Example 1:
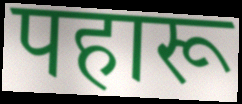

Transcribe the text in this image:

पहारू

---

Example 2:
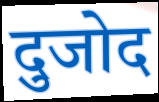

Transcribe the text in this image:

दुजोद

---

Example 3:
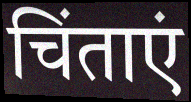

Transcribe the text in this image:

चिंताएं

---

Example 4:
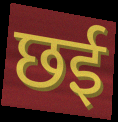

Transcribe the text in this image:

छई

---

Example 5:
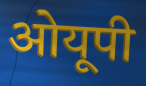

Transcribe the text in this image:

ओयूपी